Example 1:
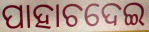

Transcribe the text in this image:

ପାହାଚଦେଇ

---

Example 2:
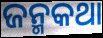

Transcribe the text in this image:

ଜନ୍ମକଥା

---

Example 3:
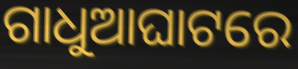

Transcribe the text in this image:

ଗାଧୁଆଘାଟରେ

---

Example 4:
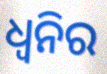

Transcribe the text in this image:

ଧ୍ୱନିର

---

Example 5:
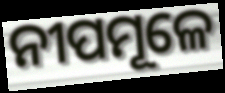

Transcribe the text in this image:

ନୀପମୂଳେ